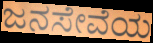
ಜನಸೇವೆಯ